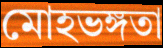
মোহভঙ্গতা